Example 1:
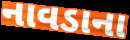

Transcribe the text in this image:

નાવડાના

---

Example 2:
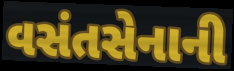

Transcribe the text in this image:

વસંતસેનાની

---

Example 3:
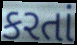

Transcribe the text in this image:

કરતાં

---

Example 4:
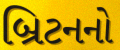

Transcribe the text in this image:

બ્રિટનનો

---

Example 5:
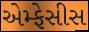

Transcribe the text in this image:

એમ્ફેસીસ